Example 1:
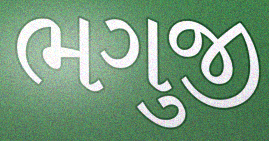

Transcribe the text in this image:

ભગુજી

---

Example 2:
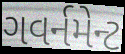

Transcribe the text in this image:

ગવર્નમેન્ટ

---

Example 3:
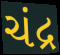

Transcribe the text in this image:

ચંદ્ર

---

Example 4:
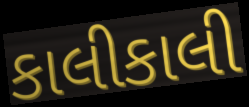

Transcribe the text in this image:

કાલીકાલી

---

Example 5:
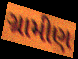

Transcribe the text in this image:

ગ્રામીણ